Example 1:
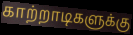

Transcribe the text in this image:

காற்றாடிகளுக்கு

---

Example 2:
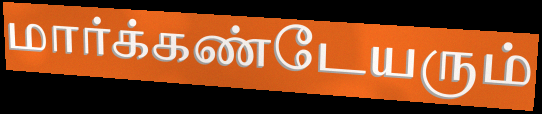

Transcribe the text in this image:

மார்க்கண்டேயரும்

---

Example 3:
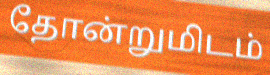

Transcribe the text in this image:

தோன்றுமிடம்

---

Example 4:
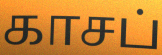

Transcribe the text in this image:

காசப்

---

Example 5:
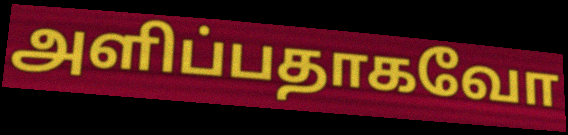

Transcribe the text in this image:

அளிப்பதாகவோ